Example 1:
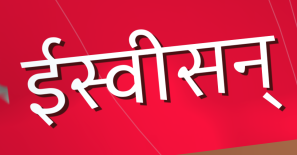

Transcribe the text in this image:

ईस्वीसन्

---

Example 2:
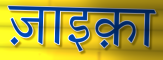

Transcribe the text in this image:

ज़ाइक़ा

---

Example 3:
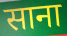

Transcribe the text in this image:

साना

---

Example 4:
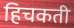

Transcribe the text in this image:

हिचकती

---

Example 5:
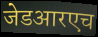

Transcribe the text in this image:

जेडआरएच